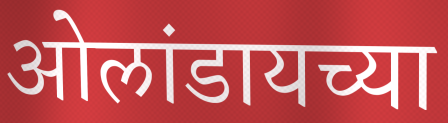
ओलांडायच्या